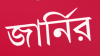
জার্নির